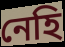
নেহি